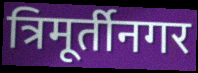
त्रिमूर्तीनगर